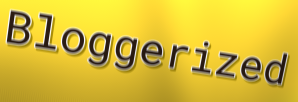
Bloggerized